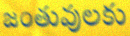
జంతువులకు